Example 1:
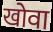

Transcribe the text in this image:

खोवा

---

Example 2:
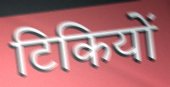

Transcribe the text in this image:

टिकियों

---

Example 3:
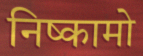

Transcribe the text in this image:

निष्कामो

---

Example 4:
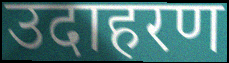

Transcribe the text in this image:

उदाहरण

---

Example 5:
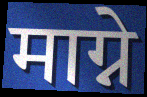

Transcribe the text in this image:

माग्ने